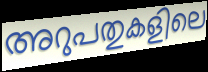
അറുപതുകളിലെ